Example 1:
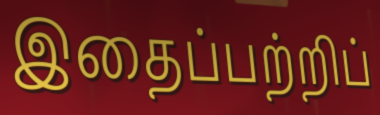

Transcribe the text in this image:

இதைப்பற்றிப்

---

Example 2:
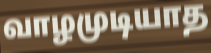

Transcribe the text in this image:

வாழமுடியாத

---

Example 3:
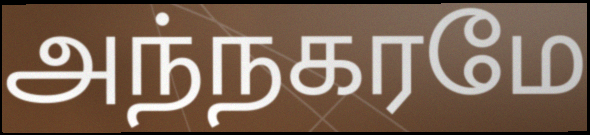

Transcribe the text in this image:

அந்நகரமே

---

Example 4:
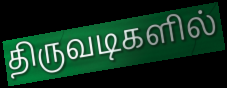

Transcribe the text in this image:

திருவடிகளில்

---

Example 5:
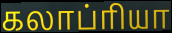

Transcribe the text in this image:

கலாப்ரியா